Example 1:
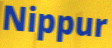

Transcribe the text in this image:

Nippur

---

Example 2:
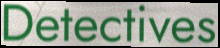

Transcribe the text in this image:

Detectives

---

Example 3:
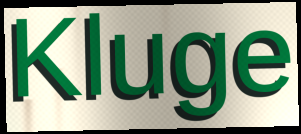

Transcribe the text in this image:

Kluge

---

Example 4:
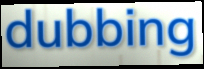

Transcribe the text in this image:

dubbing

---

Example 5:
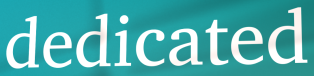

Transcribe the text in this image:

dedicated